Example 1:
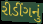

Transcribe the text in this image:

રીડીંગનું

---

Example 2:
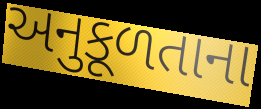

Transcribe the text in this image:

અનુકૂળતાના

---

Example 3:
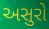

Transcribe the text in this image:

અસુરો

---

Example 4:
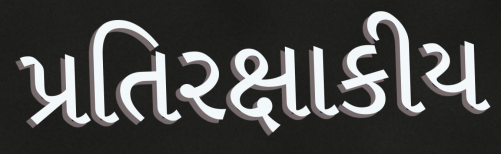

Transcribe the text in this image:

પ્રતિરક્ષાકીય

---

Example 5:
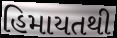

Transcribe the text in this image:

હિમાયતથી